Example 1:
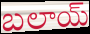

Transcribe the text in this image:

బలాయ్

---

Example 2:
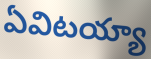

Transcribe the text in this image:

ఏవిటయ్యా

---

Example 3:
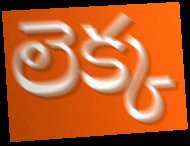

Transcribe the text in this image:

లెక్క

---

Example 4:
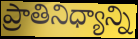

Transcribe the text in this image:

ప్రాతినిధ్యాన్ని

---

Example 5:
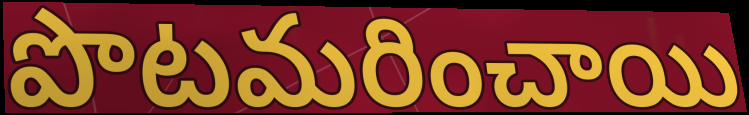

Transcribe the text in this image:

పొటమరించాయి